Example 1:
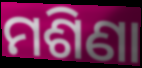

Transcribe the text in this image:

ମଶିଣା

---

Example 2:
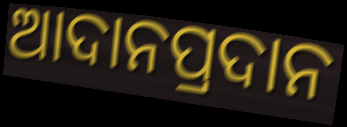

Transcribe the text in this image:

ଆଦାନପ୍ରଦାନ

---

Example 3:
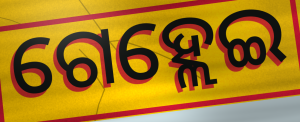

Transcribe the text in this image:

ଗେହ୍ଲେଇ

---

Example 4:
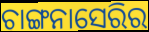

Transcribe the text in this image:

ଚାଙ୍ଗନାସେରିର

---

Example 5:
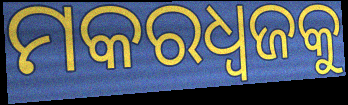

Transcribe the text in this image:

ମକରଧ୍ୱଜକୁ